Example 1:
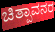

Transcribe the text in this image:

ಚಿತ್ಪಾವನರ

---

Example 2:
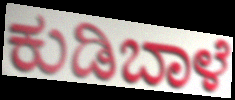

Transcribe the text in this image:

ಕುಡಿಬಾಳೆ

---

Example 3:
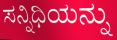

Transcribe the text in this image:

ಸನ್ನಿಧಿಯನ್ನು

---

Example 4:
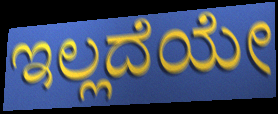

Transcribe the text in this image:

ಇಲ್ಲದೆಯೇ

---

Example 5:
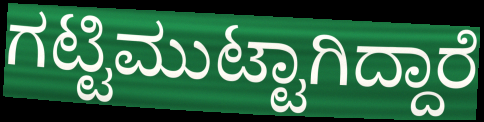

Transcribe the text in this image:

ಗಟ್ಟಿಮುಟ್ಟಾಗಿದ್ದಾರೆ